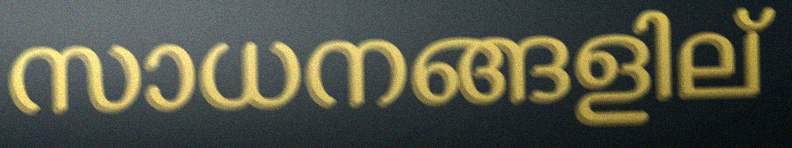
സാധനങ്ങളില്